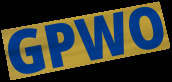
GPWO